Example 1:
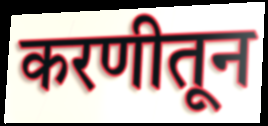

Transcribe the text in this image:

करणीतून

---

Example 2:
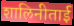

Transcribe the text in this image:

शालिनीताई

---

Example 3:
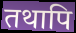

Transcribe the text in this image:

तथापि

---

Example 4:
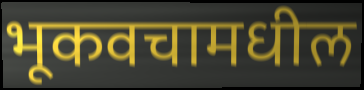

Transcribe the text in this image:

भूकवचामधील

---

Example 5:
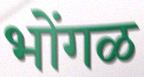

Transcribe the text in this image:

भोंगळ